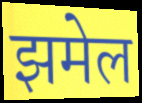
झमेल